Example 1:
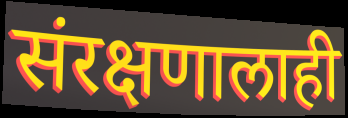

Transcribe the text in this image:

संरक्षणालाही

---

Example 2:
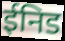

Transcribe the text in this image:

ईनिड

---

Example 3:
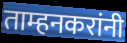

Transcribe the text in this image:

ताम्हनकरांनी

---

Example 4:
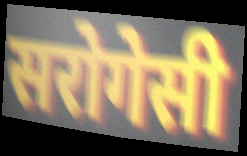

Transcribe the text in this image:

सरोगेसी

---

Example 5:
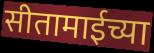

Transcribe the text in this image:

सीतामाईच्या